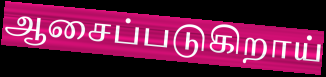
ஆசைப்படுகிறாய்